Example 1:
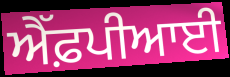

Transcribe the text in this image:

ਐੱਫ਼ਪੀਆਈ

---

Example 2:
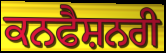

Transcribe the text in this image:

ਕਨਫੈਸ਼ਨਰੀ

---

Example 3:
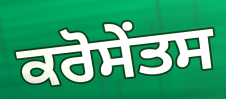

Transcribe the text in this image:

ਕਰੋਸੇਂਤਸ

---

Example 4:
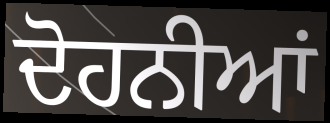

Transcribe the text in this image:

ਦੋਹਨੀਆਂ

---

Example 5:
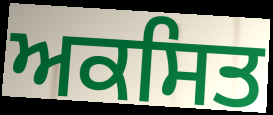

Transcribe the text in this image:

ਅਕਸਿਤ